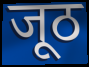
जूठ